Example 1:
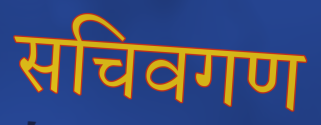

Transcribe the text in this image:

सचिवगण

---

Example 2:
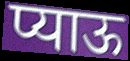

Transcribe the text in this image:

प्याऊ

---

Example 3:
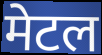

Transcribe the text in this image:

मेटल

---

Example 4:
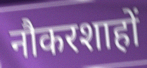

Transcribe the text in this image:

नौकरशाहों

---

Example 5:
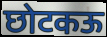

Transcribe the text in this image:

छोटकऊ